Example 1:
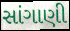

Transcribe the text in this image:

સાંગાણી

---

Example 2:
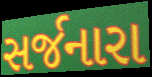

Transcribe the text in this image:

સર્જનારા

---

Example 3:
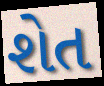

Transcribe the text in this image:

શેત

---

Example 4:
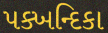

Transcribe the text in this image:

પક્ખન્દિકા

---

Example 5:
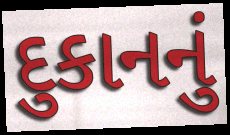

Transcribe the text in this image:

દુકાનનું